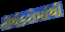
તીર્થકરોમાંથી